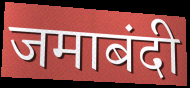
जमाबंदी